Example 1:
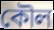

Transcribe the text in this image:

কৌল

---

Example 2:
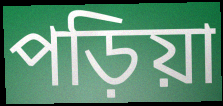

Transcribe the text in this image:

পড়িয়া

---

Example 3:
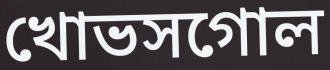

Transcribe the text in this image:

খোভসগোল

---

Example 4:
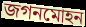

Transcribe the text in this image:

জগনমোহন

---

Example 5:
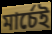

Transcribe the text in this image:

মার্চেই